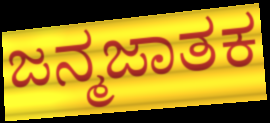
ಜನ್ಮಜಾತಕ